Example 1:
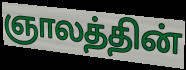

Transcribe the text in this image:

ஞாலத்தின்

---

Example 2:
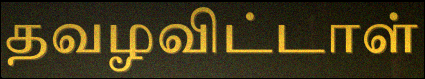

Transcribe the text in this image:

தவழவிட்டாள்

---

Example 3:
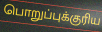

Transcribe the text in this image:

பொறுப்புக்குரிய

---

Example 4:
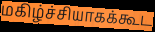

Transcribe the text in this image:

மகிழ்ச்சியாகக்கூட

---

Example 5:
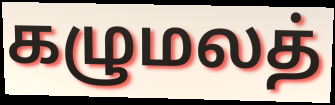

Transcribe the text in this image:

கழுமலத்